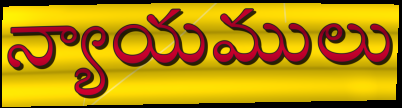
న్యాయములు